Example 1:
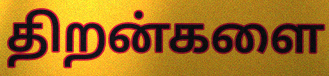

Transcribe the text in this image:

திறன்களை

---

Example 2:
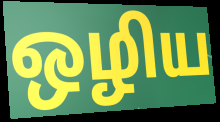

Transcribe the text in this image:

ஒழிய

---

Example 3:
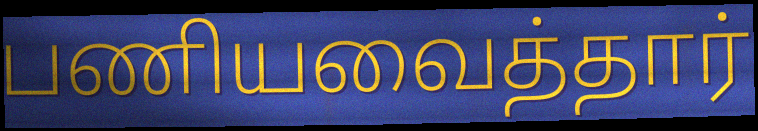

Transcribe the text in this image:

பணியவைத்தார்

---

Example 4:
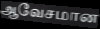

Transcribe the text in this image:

ஆவேசமான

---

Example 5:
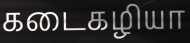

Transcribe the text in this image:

கடைகழியா